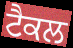
ਟੈਕਲ